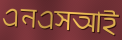
এনএসআই